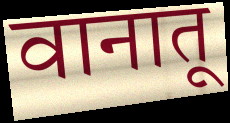
वानातू